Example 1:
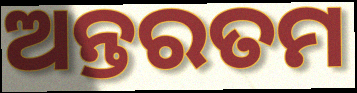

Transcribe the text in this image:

ଅନ୍ତରତମ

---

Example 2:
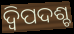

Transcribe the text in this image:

ଦ୍ବିପଦଶ୍ଚ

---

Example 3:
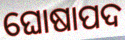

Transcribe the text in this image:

ଘୋଷାପଦ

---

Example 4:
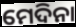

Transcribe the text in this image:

ମେଦିନା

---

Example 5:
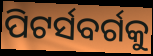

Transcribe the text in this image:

ପିଟର୍ସବର୍ଗକୁ